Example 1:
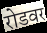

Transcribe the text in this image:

रोडवर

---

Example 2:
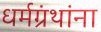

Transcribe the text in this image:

धर्मग्रंथांना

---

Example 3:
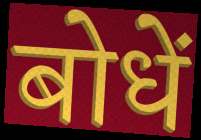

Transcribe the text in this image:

बोधें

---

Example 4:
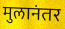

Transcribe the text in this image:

मुलानंतर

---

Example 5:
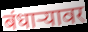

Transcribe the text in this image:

बंधाऱ्यावर